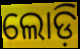
ଲୋଡ଼ି